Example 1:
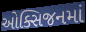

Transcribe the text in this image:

ઓક્સિજનમાં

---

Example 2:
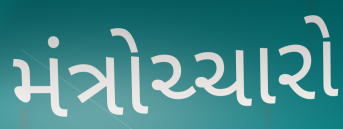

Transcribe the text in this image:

મંત્રોચ્ચારો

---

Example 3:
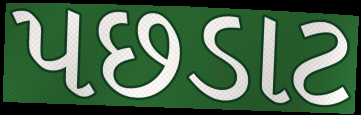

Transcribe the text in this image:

પછડાટ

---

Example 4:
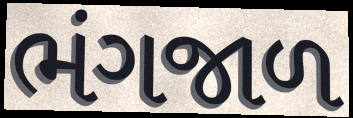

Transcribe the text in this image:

ભંગજાળ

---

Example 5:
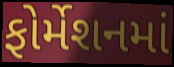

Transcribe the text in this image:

ફોર્મેશનમાં